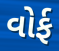
વોર્ફ